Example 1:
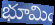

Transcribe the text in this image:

భూమిఁ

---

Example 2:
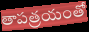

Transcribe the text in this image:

తాపత్రయంతో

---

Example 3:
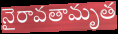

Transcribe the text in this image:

నైరావతామృత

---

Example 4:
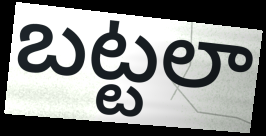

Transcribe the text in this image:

బట్టలా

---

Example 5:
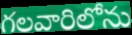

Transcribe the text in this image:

గలవారిలోను